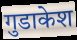
गुडाकेश